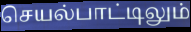
செயல்பாட்டிலும்